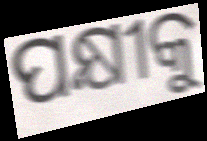
ପକ୍ଷୀକୁ